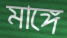
মাঙ্গে